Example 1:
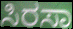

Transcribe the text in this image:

ಸಿರಸಾ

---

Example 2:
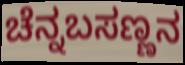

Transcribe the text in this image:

ಚೆನ್ನಬಸಣ್ಣನ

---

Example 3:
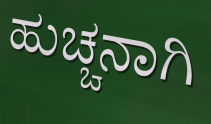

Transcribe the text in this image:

ಹುಚ್ಚನಾಗಿ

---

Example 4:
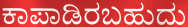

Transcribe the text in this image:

ಕಾಪಾಡಿರಬಹುದು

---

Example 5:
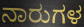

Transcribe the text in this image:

ನಾರುಗಳ